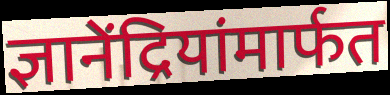
ज्ञानेंद्रियांमार्फत